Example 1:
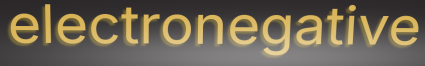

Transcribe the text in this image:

electronegative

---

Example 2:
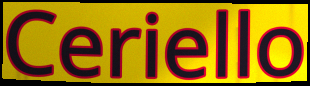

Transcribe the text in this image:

Ceriello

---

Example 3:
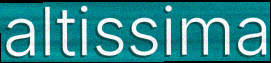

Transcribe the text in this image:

altissima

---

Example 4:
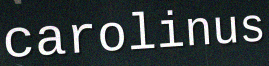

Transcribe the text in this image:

carolinus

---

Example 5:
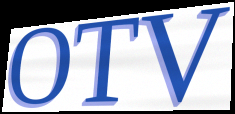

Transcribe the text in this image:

OTV